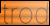
trod